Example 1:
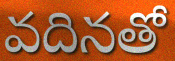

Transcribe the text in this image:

వదినతో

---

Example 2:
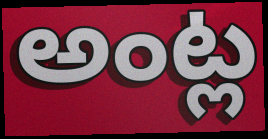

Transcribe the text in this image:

అంట్ల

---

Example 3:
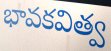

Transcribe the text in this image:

భావకవిత్వ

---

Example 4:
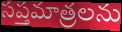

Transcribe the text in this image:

సప్తమాత్రలను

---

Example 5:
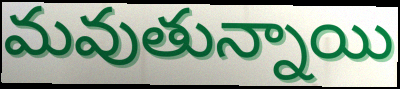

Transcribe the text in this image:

మవుతున్నాయి